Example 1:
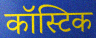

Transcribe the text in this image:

कॉस्टिक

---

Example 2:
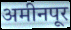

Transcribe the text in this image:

अमीनपूर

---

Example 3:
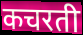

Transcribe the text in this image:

कचरती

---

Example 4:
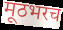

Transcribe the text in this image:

मूठभरच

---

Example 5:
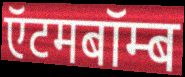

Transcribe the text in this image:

ऍटमबॉम्ब